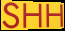
SHH